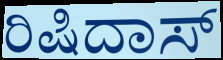
ರಿಷಿದಾಸ್